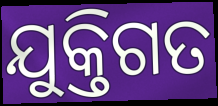
ଯୁକ୍ତିଗତ